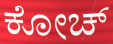
ಕೋಚ್